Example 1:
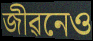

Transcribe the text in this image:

জীৱনেও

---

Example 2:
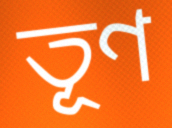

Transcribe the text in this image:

তূণ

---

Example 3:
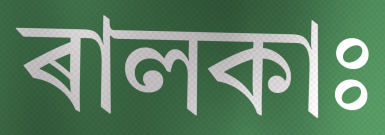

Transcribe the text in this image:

ৰালকাঃ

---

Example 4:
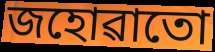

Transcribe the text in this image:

জহোৱাতো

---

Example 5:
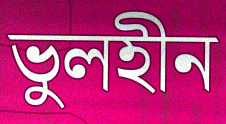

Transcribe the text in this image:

ভুলহীন